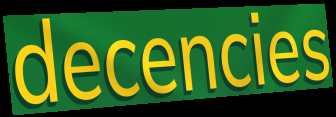
decencies